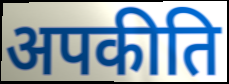
अपकीति